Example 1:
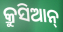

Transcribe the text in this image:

କ୍ରୁସିଆନ୍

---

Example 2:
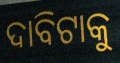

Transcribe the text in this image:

ଦାବିଟାକୁ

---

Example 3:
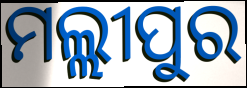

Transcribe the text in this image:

ମଲ୍ଲୀପୁର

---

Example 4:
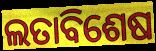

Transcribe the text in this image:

ଲତାବିଶେଷ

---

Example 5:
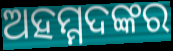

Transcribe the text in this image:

ଅହମ୍ମଦଙ୍କର